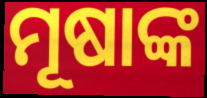
ମୂଷାଙ୍କ